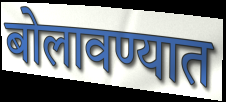
बोलावण्यात